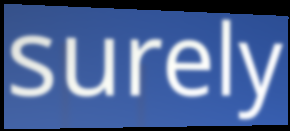
surely